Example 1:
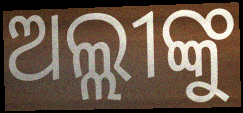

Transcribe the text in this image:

ଅଲ୍ଲୀଙ୍କୁ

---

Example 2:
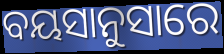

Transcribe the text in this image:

ବୟସାନୁସାରେ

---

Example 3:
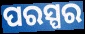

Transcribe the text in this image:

ପରସ୍ପର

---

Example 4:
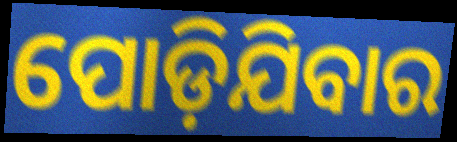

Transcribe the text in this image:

ପୋଡ଼ିଯିବାର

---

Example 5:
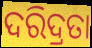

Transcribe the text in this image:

ଦରିଦ୍ରତା